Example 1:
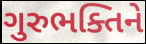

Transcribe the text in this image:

ગુરુભક્તિને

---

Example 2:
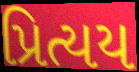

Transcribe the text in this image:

પ્રિત્યય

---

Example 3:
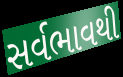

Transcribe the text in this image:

સર્વભાવથી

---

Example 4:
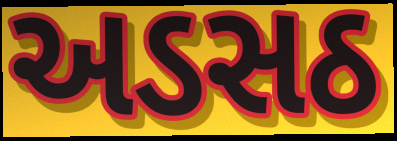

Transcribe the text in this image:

અડસઠ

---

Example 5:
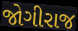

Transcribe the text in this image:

જોગીરાજ